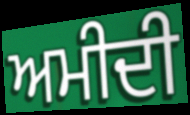
ਅਮੀਦੀ